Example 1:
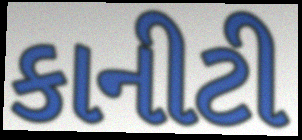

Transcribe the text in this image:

કાનીટી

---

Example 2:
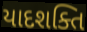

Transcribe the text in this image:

યાદશક્તિ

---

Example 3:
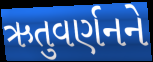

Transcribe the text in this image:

ઋતુવર્ણનને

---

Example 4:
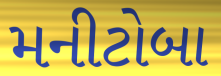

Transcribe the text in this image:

મનીટોબા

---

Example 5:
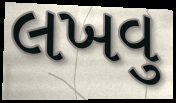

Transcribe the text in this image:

લખવુ